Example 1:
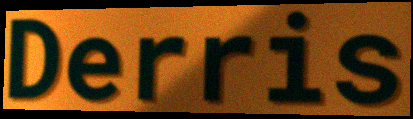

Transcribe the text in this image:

Derris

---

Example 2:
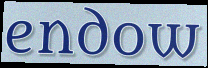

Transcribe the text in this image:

endow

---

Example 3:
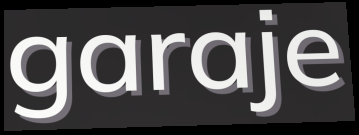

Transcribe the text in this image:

garaje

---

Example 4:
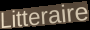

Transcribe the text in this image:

Litteraire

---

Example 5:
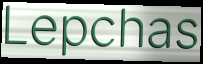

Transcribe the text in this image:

Lepchas